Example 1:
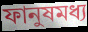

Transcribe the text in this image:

ফানুষমধ্য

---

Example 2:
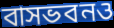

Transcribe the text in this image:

বাসভবনও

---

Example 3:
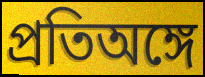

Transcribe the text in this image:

প্রতিঅঙ্গে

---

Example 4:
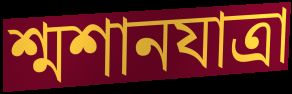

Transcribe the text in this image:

শ্মশানযাত্রা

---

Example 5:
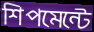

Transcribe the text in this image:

শিপমেন্টে